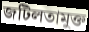
জটিলতামুক্ত